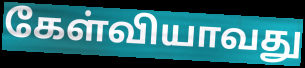
கேள்வியாவது